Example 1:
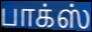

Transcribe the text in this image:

பாக்ஸ்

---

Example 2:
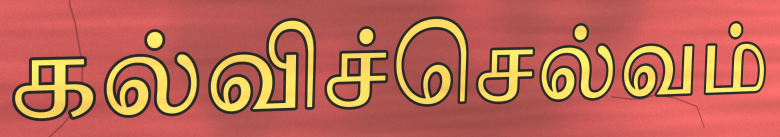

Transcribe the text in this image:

கல்விச்செல்வம்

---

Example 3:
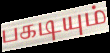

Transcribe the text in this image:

பகடியும்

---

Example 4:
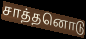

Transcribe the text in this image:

சாத்தனொடு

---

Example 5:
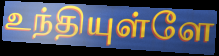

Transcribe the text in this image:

உந்தியுள்ளே